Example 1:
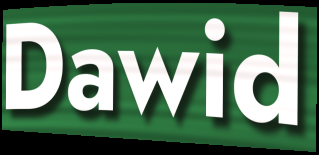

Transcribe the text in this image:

Dawid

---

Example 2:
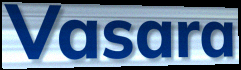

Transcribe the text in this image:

Vasara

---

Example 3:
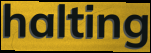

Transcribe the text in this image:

halting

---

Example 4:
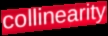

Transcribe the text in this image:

collinearity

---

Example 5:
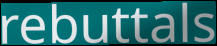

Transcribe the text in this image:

rebuttals